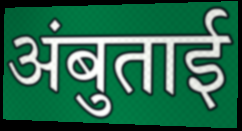
अंबुताई